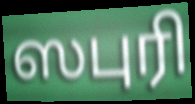
ஸபுரி